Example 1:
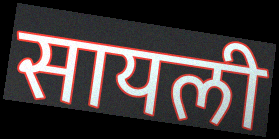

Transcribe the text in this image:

सायली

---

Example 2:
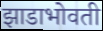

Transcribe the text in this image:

झाडाभोवती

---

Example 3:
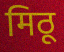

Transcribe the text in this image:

मिठू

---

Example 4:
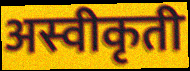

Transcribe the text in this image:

अस्वीकृती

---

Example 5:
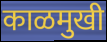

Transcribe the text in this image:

काळमुखी